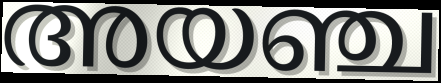
അയഞ്ച